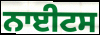
ਨਾਈਟਸ